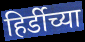
हिर्डीच्या